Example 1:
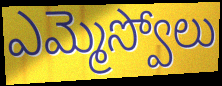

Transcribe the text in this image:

ఎమ్మెస్వోలు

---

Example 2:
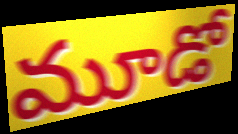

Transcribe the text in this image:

మూడో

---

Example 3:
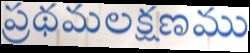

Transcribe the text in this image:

ప్రథమలక్షణము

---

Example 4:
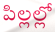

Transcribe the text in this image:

పిల్లల్లో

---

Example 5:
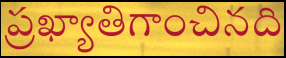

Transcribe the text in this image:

ప్రఖ్యాతిగాంచినది